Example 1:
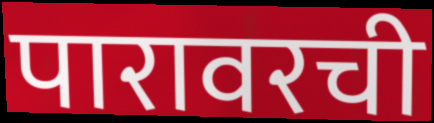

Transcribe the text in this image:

पारावरची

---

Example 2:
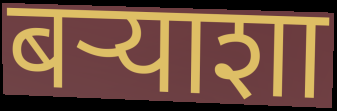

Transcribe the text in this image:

बऱ्याशा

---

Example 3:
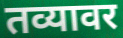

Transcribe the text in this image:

तव्यावर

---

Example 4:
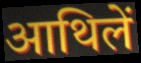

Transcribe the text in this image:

आथिलें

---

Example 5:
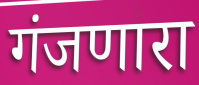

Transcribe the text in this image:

गंजणारा